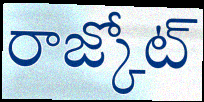
రాజ్కోట్